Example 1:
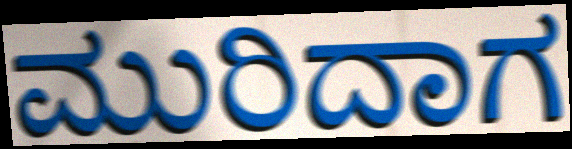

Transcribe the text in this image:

ಮುರಿದಾಗ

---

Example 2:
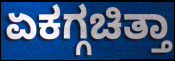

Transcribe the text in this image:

ಏಕಗ್ಗಚಿತ್ತಾ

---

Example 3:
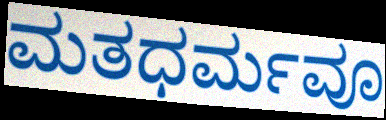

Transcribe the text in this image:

ಮತಧರ್ಮವೂ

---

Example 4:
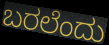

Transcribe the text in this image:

ಬರಲೆಂದು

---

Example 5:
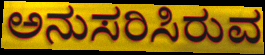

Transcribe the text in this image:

ಅನುಸರಿಸಿರುವ